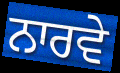
ਨਾਰਵੇ